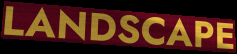
LANDSCAPE